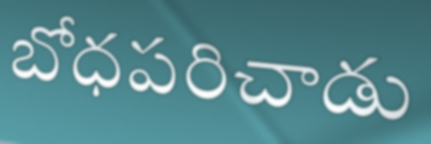
బోధపరిచాడు